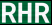
RHR